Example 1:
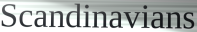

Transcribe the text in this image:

Scandinavians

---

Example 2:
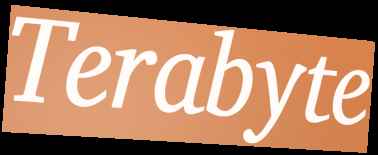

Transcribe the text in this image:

Terabyte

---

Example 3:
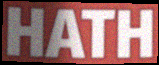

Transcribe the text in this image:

HATH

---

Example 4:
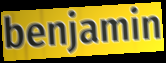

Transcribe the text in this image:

benjamin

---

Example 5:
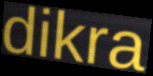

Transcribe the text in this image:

dikra